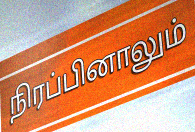
நிரப்பினாலும்